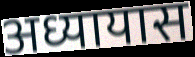
अध्यायास